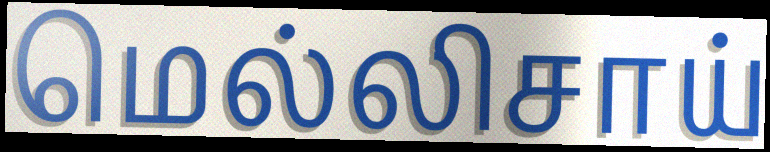
மெல்லிசாய்